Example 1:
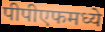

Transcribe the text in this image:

पीपीएफमध्ये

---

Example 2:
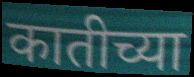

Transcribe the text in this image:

कातीच्या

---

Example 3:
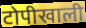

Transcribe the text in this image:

टोपीखाली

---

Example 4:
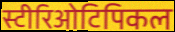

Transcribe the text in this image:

स्टीरिओटिपिकल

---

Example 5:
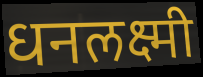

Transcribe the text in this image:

धनलक्ष्मी